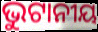
ଭୁଟାନୀୟ